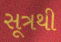
સૂત્રથી